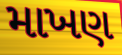
માખણ